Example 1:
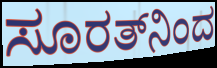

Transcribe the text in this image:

ಸೂರತ್‌ನಿಂದ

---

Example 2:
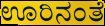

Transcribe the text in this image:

ಊರಿನಂತೆ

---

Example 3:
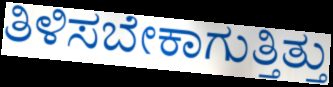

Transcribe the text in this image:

ತಿಳಿಸಬೇಕಾಗುತ್ತಿತ್ತು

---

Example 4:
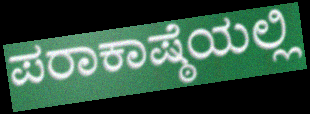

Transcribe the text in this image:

ಪರಾಕಾಷ್ಠೆಯಲ್ಲಿ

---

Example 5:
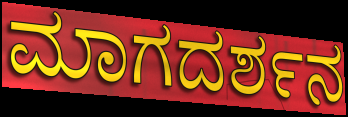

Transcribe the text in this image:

ಮಾಗದರ್ಶನ